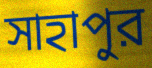
সাহাপুর